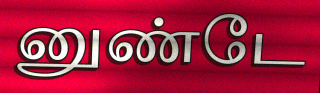
னுண்டே